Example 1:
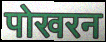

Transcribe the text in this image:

पोखरन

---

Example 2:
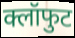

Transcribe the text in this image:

क्लॉफुट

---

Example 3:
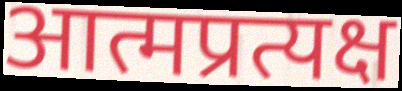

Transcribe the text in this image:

आत्मप्रत्यक्ष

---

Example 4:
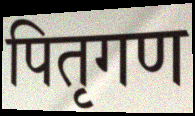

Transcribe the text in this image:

पितृगण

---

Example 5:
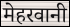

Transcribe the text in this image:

मेहरवानी